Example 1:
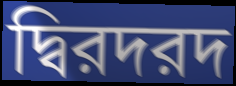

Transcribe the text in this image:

দ্বিরদরদ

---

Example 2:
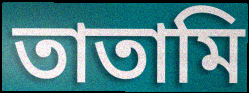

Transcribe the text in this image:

তাতামি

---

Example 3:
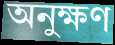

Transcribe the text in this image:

অনুক্ষণ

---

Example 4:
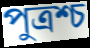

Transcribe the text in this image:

পুত্রশ্চ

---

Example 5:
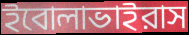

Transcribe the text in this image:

ইবোলাভাইরাস